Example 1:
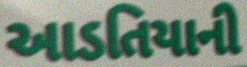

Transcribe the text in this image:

આડતિયાની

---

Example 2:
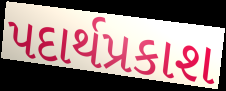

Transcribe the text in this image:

પદાર્થપ્રકાશ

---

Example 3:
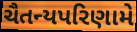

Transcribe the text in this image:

ચૈતન્યપરિણામે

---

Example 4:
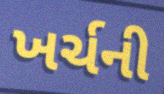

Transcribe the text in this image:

ખર્ચની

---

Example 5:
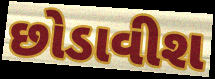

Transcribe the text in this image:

છોડાવીશ